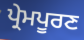
ਪ੍ਰੇਮਪੂਰਣ